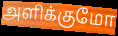
அளிக்குமோ